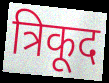
त्रिकूद